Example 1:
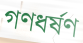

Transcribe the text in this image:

গণধর্ষণ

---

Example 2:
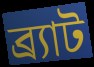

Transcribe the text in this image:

ব্র্যাট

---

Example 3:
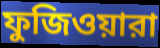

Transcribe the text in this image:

ফুজিওয়ারা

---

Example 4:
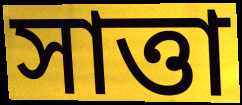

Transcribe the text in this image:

সাত্তা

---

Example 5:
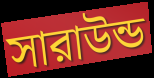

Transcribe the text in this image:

সারাউন্ড